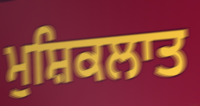
ਮੁਸ਼ਿਕਲਾਤ